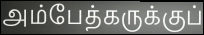
அம்பேத்கருக்குப்